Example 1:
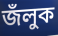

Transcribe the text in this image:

জঁলুক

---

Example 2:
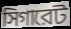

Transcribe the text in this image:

সিগারেট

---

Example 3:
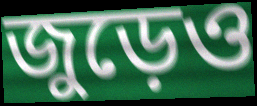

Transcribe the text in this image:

জুড়েও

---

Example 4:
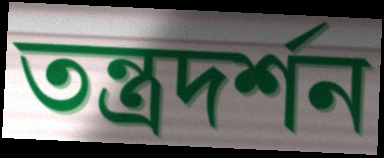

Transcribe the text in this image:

তন্ত্রদর্শন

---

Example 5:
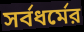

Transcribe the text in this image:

সর্বধর্মের